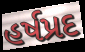
હર્ષપ્રદ